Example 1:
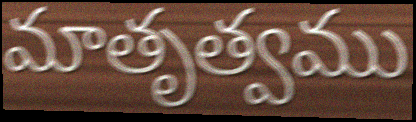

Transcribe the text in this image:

మాతృత్వము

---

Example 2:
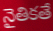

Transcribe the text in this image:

నైతికతే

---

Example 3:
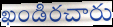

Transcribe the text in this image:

ఖండిరచారు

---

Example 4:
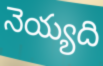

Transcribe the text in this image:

నెయ్యది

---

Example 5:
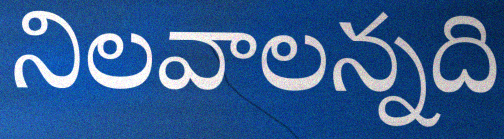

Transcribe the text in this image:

నిలవాలన్నది